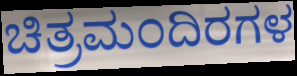
ಚಿತ್ರಮಂದಿರಗಳ